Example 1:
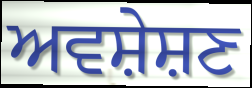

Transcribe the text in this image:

ਅਵਸ਼ੇਸ਼ਣ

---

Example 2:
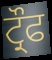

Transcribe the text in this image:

ਟ੍ਰੌਫ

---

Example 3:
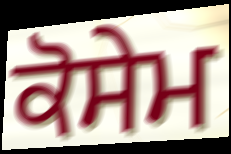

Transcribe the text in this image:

ਕੋਸੇਮ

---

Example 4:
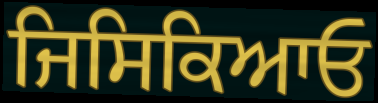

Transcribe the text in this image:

ਜਿਸਿਕਿਆਓ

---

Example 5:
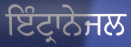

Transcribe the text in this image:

ਇੰਟ੍ਰਾਨੇਜਲ